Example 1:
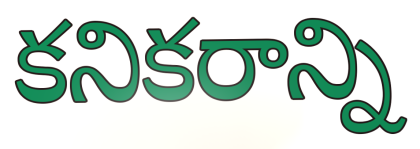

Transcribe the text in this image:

కనికరాన్ని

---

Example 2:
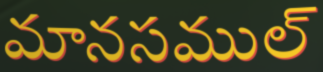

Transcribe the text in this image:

మానసముల్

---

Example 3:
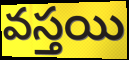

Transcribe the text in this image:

వస్తయి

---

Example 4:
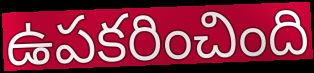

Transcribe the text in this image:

ఉపకరించింది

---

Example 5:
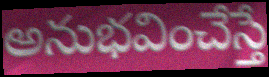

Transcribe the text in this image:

అనుభవించేస్తే